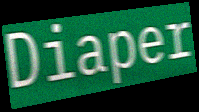
Diaper